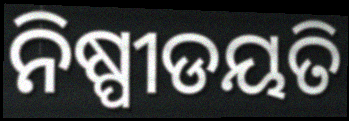
ନିଷ୍ପୀଡୟତି